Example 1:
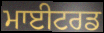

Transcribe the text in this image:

ਮਾਈਟਰਡ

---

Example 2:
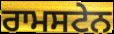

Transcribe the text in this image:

ਰਾਮਸਟੇਨ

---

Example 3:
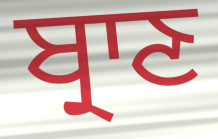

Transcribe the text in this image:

ਬ੍ਰਾਣ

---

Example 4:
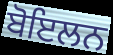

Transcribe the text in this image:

ਬੋਇਲਨ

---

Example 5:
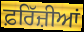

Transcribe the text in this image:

ਫ਼ਰਿੱਜ਼ੀਆਂ